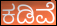
ಕಡಿವೆ